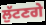
ਲੁੱਟਣਗੇ